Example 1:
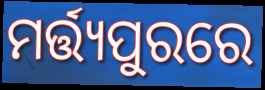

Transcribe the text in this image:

ମର୍ତ୍ତ୍ୟପୁରରେ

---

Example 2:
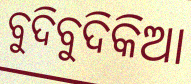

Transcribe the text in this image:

ବୁଦିବୁଦିକିଆ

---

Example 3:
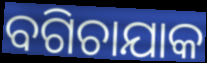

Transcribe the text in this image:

ବଗିଚାଯାକ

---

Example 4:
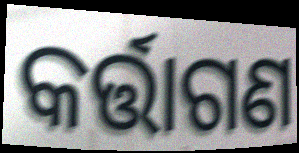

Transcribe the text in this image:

କର୍ତ୍ତାଗଣ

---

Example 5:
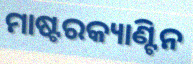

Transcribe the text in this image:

ମାଷ୍ଟରକ୍ୟାଣ୍ଟିନ